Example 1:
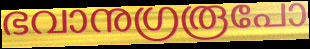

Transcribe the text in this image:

ഭവാനുഗ്രരൂപോ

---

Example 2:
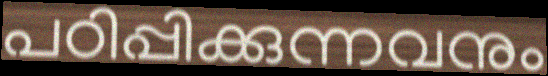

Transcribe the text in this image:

പഠിപ്പിക്കുന്നവനും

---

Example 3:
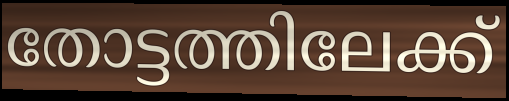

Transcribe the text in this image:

തോട്ടത്തിലേക്ക്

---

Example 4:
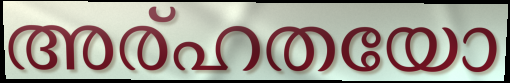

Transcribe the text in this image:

അര്ഹതയോ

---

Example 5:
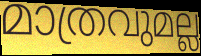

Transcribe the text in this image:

മാത്രവുമല്ല